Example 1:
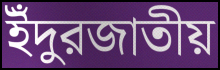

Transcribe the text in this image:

ইঁদুরজাতীয়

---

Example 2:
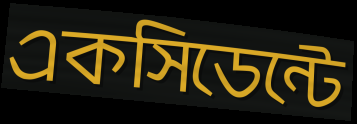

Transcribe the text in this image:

একসিডেন্টে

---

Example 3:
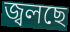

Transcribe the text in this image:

জ্বলছে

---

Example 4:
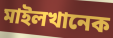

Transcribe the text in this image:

মাইলখানেক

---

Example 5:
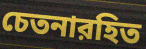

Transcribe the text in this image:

চেতনারহিত